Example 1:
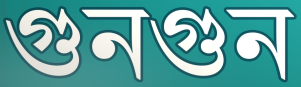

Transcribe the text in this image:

গুনগুন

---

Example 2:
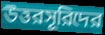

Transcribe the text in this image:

উত্তরসূরিদের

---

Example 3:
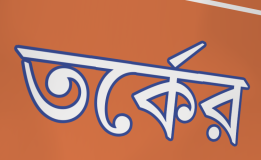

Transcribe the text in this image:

তর্কের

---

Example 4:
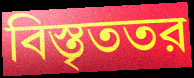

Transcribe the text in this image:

বিস্তৃততর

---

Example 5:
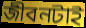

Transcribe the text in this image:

জীবনটাই